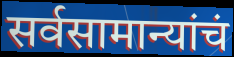
सर्वसामान्यांचं